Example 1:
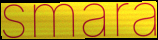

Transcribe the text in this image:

smara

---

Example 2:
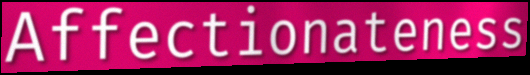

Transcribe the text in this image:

Affectionateness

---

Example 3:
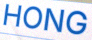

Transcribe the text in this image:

HONG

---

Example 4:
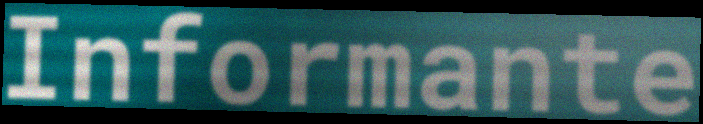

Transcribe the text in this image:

Informante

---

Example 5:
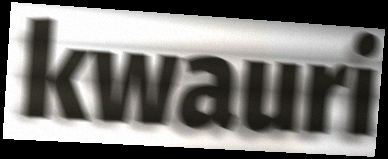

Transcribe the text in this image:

kwauri